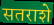
सतराशे